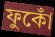
ফুকোঁ